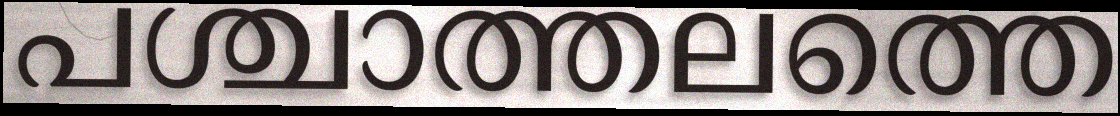
പശ്ചാത്തലത്തെ